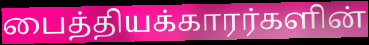
பைத்தியக்காரர்களின்